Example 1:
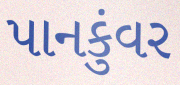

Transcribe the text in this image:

પાનકુંવર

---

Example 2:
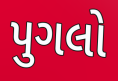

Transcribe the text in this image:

પુગલો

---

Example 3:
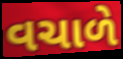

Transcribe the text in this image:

વચાળે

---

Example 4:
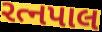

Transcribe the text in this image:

રત્નપાલ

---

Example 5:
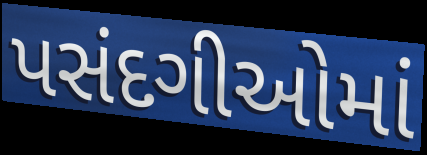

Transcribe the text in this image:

પસંદગીઓમાં